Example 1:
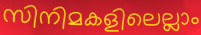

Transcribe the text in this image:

സിനിമകളിലെല്ലാം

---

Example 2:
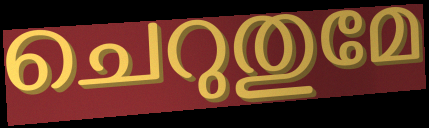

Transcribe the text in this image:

ചെറുതുമേ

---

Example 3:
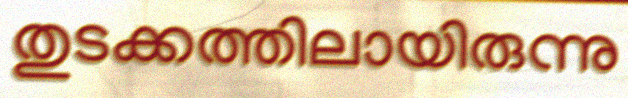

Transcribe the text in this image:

തുടക്കത്തിലായിരുന്നു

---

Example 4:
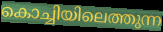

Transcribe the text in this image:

കൊച്ചിയിലെത്തുന്ന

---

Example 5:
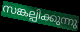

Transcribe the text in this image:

സങ്കല്പിക്കുന്നു